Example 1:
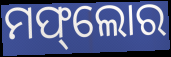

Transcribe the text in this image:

ମଫ୍‌ଲୋର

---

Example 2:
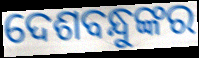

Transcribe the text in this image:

ଦେଶବନ୍ଧୁଙ୍କର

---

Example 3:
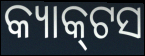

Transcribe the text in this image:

କ୍ୟାକ୍‌ଟସ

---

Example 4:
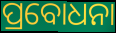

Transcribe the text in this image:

ପ୍ରବୋଧନା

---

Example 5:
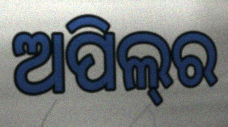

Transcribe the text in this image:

ଅପିଲ୍‍ର